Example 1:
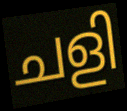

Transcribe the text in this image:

ചളി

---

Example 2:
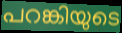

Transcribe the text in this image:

പറങ്കിയുടെ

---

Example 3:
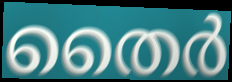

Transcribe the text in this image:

തൈർ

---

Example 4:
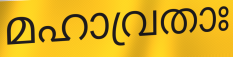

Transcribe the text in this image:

മഹാവ്രതാഃ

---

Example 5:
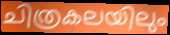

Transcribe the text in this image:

ചിത്രകലയിലും